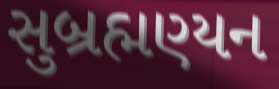
સુબ્રહ્મણ્યન